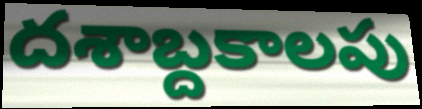
దశాబ్దకాలపు